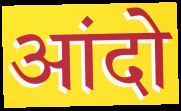
आंदो